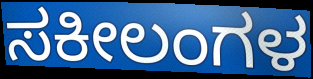
ಸಕೀಲಂಗಳ